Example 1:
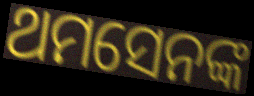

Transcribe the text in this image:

ଥମସେନଙ୍କ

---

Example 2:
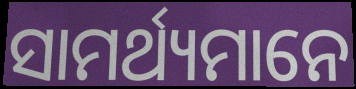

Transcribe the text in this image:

ସାମର୍ଥ୍ୟମାନେ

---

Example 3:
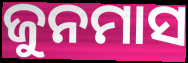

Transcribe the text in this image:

ଜୁନମାସ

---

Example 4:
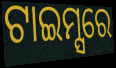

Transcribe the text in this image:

ଟାଇମ୍ସରେ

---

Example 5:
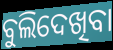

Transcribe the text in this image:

ବୁଲିଦେଖିବା